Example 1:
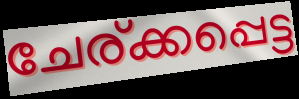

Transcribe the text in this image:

ചേര്ക്കപ്പെട്ട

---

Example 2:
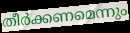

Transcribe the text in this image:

തീർക്കണമെന്നും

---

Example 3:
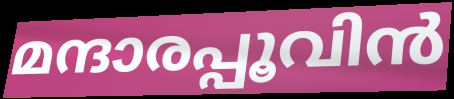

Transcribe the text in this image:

മന്ദാരപ്പൂവിൻ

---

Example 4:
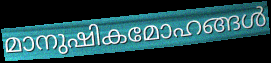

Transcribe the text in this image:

മാനുഷികമോഹങ്ങൾ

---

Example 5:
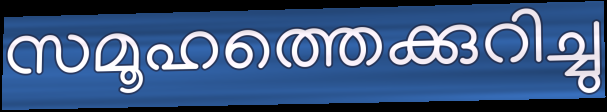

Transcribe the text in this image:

സമൂഹത്തെക്കുറിച്ചു